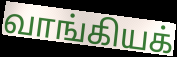
வாங்கியக்